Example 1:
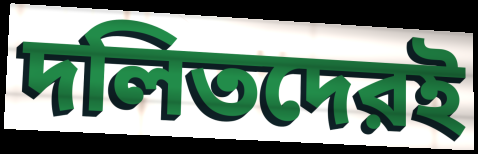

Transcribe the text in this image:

দলিতদেরই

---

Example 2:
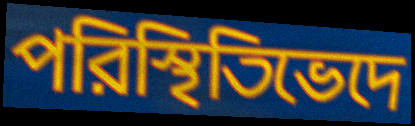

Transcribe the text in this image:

পরিস্থিতিভেদে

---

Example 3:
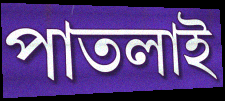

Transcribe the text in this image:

পাতলাই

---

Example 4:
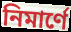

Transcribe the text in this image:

নিমার্ণে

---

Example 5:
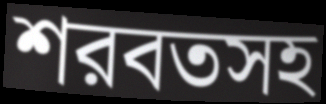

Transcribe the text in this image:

শরবতসহ